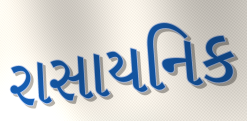
રાસાયનિક